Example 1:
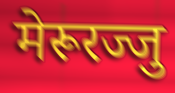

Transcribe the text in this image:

मेरूरज्जु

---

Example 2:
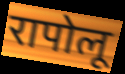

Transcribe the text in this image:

रापोलू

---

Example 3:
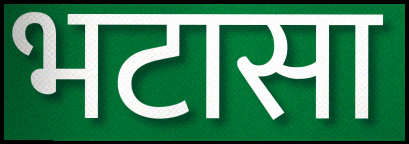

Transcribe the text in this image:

भटासा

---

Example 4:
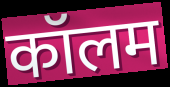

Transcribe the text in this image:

कॉलम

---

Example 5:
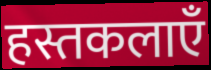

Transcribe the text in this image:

हस्तकलाएँ